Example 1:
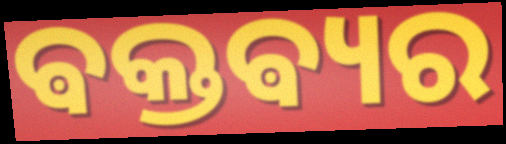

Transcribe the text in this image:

ଵକ୍ତଵ୍ୟର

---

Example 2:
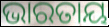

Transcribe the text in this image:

ଭାରତାୟ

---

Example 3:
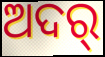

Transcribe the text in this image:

ଅଦର୍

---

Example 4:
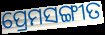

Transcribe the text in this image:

ପ୍ରେମସଙ୍ଗୀତ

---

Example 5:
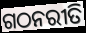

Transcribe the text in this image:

ଗଠନରୀତି